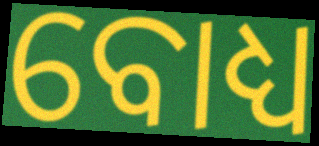
ବୋଧ୍ୟ